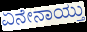
ಏನೇನಾಯ್ತು